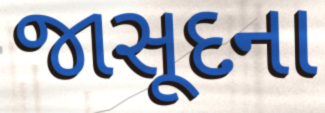
જાસૂદના